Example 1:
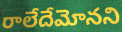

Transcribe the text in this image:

రాలేదేమోనని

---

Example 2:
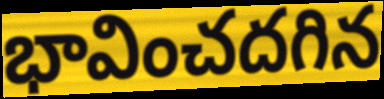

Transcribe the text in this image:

భావించదగిన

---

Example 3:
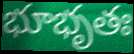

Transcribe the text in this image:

భూభృతః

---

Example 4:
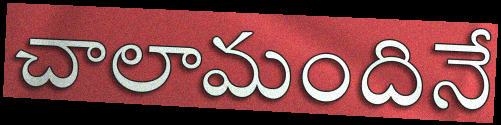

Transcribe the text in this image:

చాలామందినే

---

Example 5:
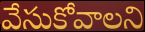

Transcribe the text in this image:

వేసుకోవాలని